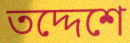
তদ্দেশে